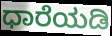
ಧಾರೆಯಡಿ